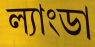
ল্যাংডা